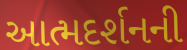
આત્મદર્શનની